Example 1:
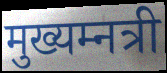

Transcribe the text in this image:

मुख्यम्नत्री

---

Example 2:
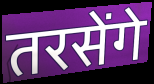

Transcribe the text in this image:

तरसेंगे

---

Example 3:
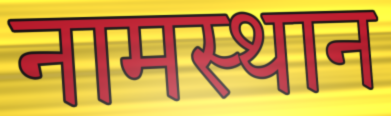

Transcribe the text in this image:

नामस्थान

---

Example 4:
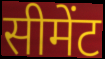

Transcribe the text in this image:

सीमेंट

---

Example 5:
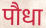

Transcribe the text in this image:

पौधा